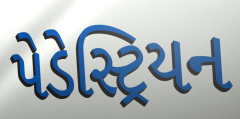
પેડેસ્ટ્રિયન